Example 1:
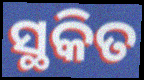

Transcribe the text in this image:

ସ୍ଥକିତ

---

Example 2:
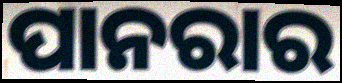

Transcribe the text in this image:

ପାନରାର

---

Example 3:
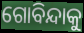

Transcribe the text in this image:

ଗୋବିନ୍ଦାକୁ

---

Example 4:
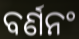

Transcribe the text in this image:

ବର୍ଣନଂ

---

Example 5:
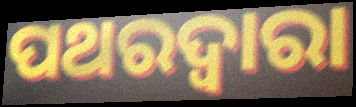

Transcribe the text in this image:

ପଥରଦ୍ୱାରା